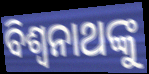
ବିଶ୍ବନାଥଙ୍କୁ